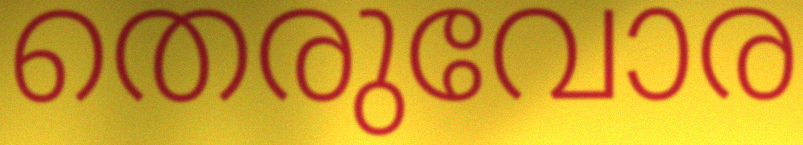
തെരുവോര